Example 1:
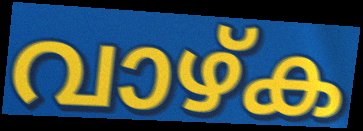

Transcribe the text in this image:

വാഴ്ക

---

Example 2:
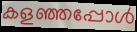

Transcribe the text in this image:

കളഞ്ഞപ്പോൾ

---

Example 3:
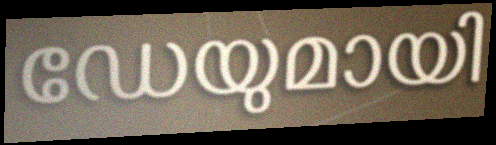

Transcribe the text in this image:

ഡേയുമായി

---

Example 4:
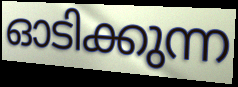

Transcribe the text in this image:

ഓടിക്കുന്ന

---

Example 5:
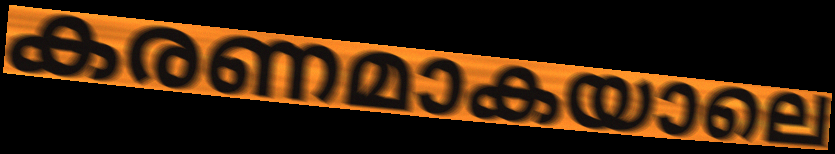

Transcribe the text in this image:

കരണമാകയാലെ